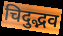
चिदुद्भव